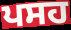
ਪਸਹ